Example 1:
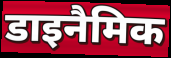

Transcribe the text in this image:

डाइनैमिक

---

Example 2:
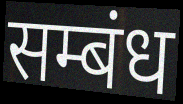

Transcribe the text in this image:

सम्बंध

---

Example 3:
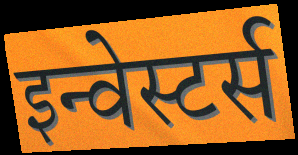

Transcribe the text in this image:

इन्वेस्टर्स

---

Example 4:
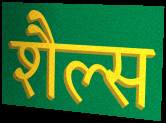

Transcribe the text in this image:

शैल्स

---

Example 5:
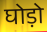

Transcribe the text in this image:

घोड़ो